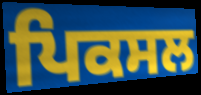
ਪਿਕਸਲ